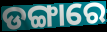
ଡଙ୍ଗାରେ